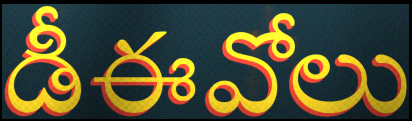
డీఈవోలు